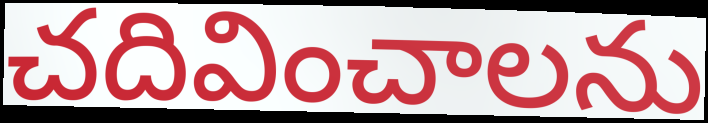
చదివించాలను